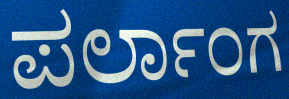
ಪರ್ಲಾಂಗ